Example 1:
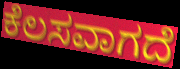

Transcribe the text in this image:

ಕೆಲಸವಾಗದೆ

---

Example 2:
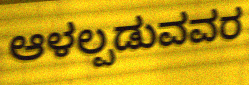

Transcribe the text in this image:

ಆಳಲ್ಪಡುವವರ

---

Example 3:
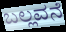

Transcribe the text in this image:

ಬಲ್ಲವನೆ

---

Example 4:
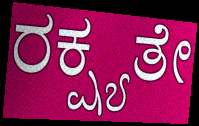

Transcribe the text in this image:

ರಕ್ಷ್ಯತೇ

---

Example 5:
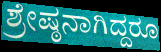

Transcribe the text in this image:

ಶ್ರೇಷ್ಠನಾಗಿದ್ದರೂ